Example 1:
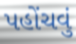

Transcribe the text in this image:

પહોંચવું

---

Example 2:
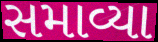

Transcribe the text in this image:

સમાવ્યા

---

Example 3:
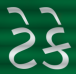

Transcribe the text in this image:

ટેકે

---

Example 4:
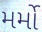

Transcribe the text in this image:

મર્મો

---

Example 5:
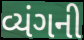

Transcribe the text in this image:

વ્યંગની